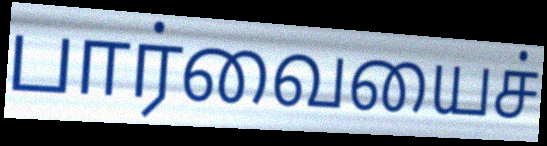
பார்வையைச்